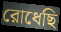
রোধেছি